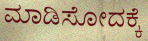
ಮಾಡಿಸೋದಕ್ಕೆ